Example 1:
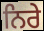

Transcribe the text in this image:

ਨਿਰੇ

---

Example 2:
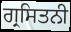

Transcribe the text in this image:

ਗ੍ਰਸਿਤਨੀ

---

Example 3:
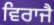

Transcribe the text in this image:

ਵਿਰਾਜੈ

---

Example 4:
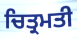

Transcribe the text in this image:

ਚਿਤ੍ਰਮਤੀ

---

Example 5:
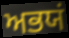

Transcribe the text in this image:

ਅਭਯਂ